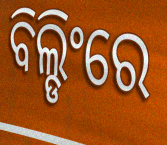
ବିଲ୍ଡିଂରେ